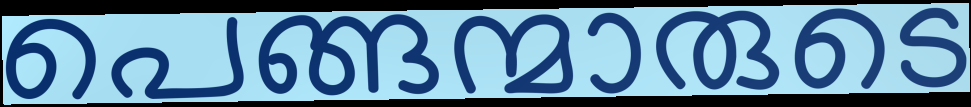
പെങ്ങന്മാരുടെ